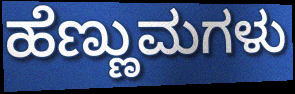
ಹೆಣ್ಣುಮಗಳು